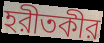
হরীতকীর